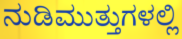
ನುಡಿಮುತ್ತುಗಳಲ್ಲಿ